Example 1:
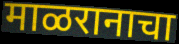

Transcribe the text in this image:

माळरानाचा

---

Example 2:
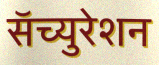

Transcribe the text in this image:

सॅच्युरेशन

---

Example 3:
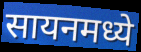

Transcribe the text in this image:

सायनमध्ये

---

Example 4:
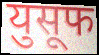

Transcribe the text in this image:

युसूफ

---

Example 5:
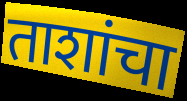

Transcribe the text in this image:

ताशांचा